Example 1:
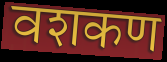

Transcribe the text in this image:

वशकण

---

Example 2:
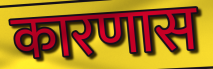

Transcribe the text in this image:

कारणास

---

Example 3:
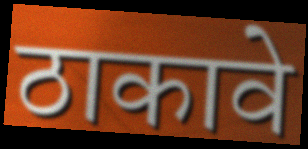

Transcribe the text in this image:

ठाकावे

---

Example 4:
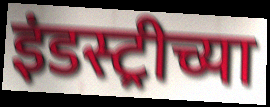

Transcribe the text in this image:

इंडस्ट्रीच्या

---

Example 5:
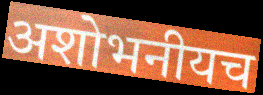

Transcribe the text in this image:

अशोभनीयच